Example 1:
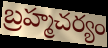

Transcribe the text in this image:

బ్రహ్మచర్యం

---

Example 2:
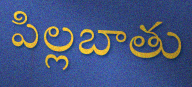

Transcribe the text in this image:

పిల్లబాతు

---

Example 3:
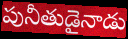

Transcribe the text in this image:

పునీతుడైనాడు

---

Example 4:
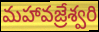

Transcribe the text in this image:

మహావజ్రేశ్వరి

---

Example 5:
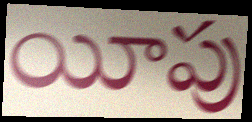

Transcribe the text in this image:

యీపు